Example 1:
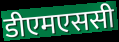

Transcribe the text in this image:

डीएमएससी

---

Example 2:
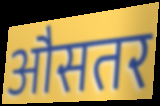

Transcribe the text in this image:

औसतर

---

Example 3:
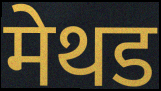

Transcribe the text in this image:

मेथड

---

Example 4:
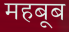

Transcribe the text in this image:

महबूब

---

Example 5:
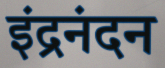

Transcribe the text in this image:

इंद्रनंदन